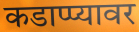
कडाप्प्यावर